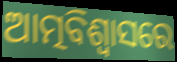
ଆତ୍ମବିଶ୍ଵାସରେ